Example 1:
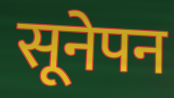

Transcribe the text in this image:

सूनेपन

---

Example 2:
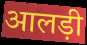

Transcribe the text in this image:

आलड़ी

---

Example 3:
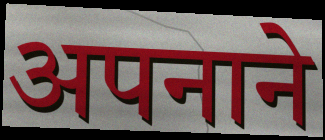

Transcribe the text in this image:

अपनाने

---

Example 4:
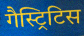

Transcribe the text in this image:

गैस्ट्रिटिस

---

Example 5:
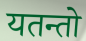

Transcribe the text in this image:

यतन्तो